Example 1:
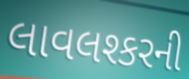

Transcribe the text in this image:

લાવલશ્કરની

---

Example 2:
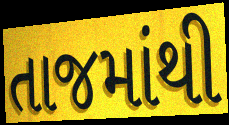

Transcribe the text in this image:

તાજમાંથી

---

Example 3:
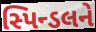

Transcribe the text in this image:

સ્પિન્ડલને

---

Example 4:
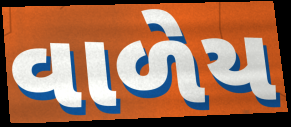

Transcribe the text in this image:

વાળેય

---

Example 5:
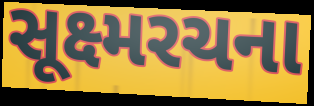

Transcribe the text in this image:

સૂક્ષ્મરચના